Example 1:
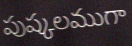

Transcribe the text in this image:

పుష్కలముగా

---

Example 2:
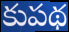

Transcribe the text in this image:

కుపథ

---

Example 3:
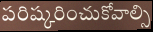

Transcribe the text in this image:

పరిష్కరించుకోవాల్సి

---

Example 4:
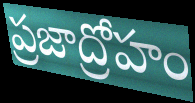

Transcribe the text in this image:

ప్రజాద్రోహం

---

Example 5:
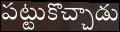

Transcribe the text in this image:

పట్టుకొచ్చాడు